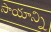
సాయాన్ని